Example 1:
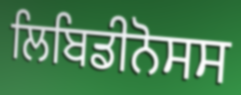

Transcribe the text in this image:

ਲਿਬਿਡੀਨੋਸਸ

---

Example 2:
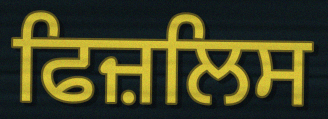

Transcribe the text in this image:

ਫਿਜ਼ਲਿਸ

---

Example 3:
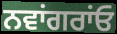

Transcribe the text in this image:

ਨਵਾਂਗਰਾਂਓ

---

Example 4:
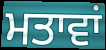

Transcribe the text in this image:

ਮਤਾਵਾਂ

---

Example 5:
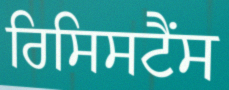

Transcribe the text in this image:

ਰਿਸਿਸਟੈਂਸ